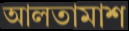
আলতামাশ